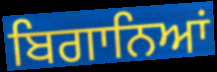
ਬਿਗਾਨਿਆਂ